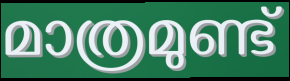
മാത്രമുണ്ട്